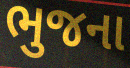
ભુજના